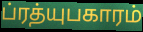
ப்ரத்யுபகாரம்